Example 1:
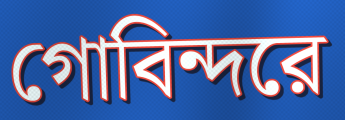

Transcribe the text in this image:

গোবিন্দরে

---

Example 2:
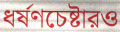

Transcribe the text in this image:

ধর্ষণচেষ্টারও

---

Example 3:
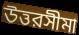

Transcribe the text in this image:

উত্তরসীমা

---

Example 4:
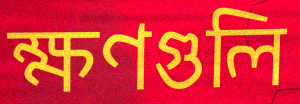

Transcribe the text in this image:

ক্ষণগুলি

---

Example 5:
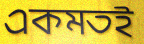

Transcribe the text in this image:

একমতই